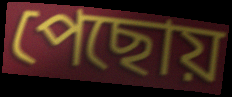
পেছোয়